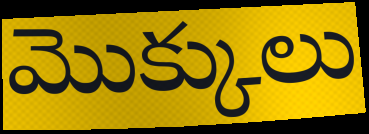
మొక్కులు